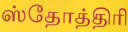
ஸ்தோத்திரி